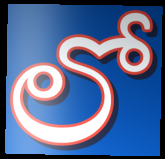
లో